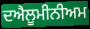
ਦਐਲੂਮੀਨੀਅਮ